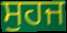
ਸੁਹਜ